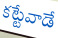
కట్టేవాడే